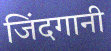
जिंदगानी